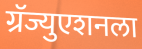
ग्रॅज्युएशनला